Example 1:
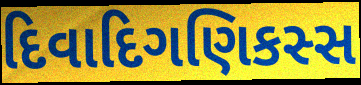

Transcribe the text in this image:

દિવાદિગણિકસ્સ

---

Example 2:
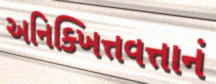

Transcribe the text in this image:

અનિક્ખિત્તવત્તાનં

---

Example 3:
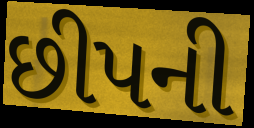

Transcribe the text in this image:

છીપની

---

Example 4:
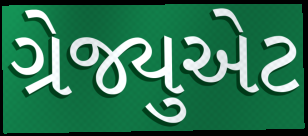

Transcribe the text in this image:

ગ્રેજ્યુએટ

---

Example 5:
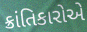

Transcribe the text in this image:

ક્રાંતિકારોએ